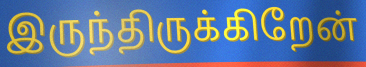
இருந்திருக்கிறேன்